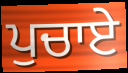
ਪੁਚਾਏ